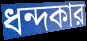
ধন্দকার